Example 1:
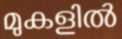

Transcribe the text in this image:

മുകളിൽ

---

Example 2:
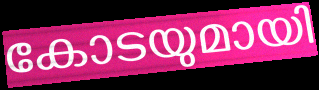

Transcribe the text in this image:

കോടയുമായി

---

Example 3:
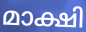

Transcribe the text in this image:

മാക്ഷി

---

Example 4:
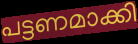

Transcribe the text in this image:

പട്ടണമാക്കി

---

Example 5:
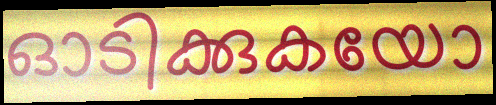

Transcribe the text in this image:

ഓടിക്കുകയോ